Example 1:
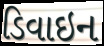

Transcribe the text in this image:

ડિવાઇન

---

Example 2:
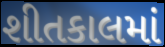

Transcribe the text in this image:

શીતકાલમાં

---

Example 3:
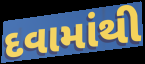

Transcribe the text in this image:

દવામાંથી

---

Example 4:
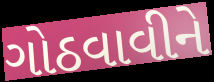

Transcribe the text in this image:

ગોઠવાવીને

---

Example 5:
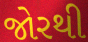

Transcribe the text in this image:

જોરથી